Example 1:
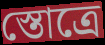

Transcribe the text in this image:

স্তোত্রে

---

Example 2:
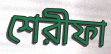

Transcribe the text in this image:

শেরীফা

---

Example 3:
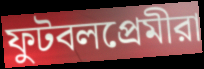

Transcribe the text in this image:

ফুটবলপ্রেমীরা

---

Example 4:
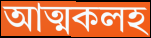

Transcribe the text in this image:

আত্মকলহ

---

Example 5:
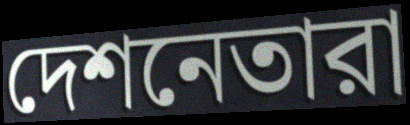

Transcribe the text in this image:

দেশনেতারা